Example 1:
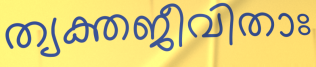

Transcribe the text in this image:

ത്യക്തജീവിതാഃ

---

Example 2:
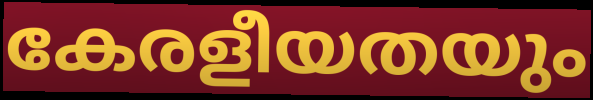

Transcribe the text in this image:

കേരളീയതയും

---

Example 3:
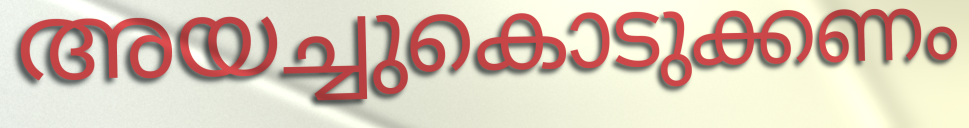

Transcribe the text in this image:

അയച്ചുകൊടുക്കണം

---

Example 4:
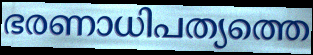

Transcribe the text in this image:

ഭരണാധിപത്യത്തെ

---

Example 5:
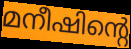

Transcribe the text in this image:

മനീഷിന്റെ